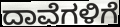
ದಾವೆಗಳಿಗೆ